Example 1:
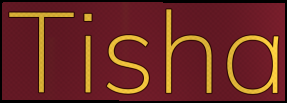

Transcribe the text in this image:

Tisha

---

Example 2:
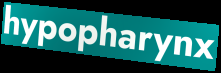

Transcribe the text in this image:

hypopharynx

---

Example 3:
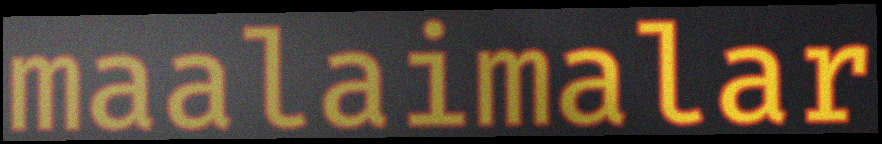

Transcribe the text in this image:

maalaimalar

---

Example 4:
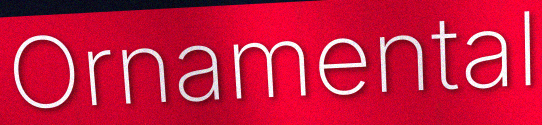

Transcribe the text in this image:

Ornamental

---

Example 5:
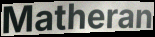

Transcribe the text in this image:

Matheran